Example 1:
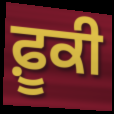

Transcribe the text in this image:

ਫ਼ੂਕੀ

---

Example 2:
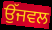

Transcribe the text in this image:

ਉੱਜਵਲ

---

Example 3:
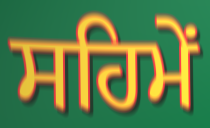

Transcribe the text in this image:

ਸਹਿਮੇਂ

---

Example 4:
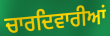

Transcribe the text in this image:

ਚਾਰਦਿਵਾਰੀਆਂ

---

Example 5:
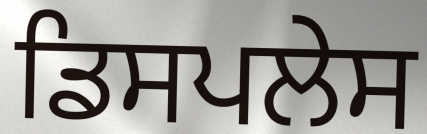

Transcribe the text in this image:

ਡਿਸਪਲੇਸ